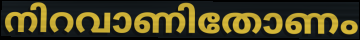
നിറവാണിതോണം